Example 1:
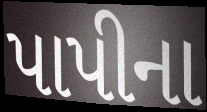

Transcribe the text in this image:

પાપીના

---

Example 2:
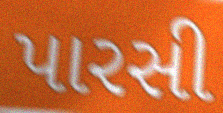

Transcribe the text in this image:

પારસી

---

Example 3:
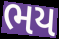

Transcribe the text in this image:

ભય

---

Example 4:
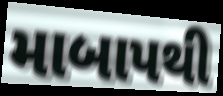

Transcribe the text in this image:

માબાપથી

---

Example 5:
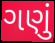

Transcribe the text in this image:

ગણું